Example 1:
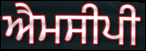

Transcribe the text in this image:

ਐਮਸੀਪੀ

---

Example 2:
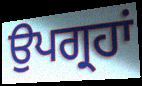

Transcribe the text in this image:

ਉਪਗ੍ਰਹਾਂ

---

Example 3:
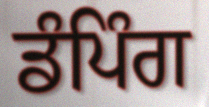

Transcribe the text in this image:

ਡੰਪਿੰਗ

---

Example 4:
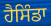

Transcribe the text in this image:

ਹੈਸਿੰਡਾ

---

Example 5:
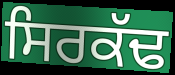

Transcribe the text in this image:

ਸਿਰਕੱਢ